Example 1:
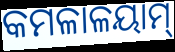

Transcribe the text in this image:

କମଳାଳୟାମ୍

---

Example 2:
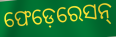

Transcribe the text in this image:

ଫେଡ଼େରେସନ୍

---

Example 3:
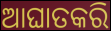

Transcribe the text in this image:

ଆଘାତକରି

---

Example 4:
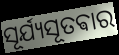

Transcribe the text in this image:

ସୂର୍ଯ୍ଯସୂତଵାର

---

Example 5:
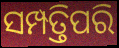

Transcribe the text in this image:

ସମ୍ପତ୍ତିପରି